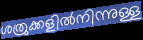
ശത്രുക്കളിൽനിന്നുള്ള